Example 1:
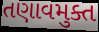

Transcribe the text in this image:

તણાવમુક્ત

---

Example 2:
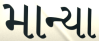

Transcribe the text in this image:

માન્યા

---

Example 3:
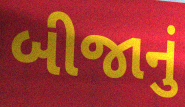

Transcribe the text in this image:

બીજાનું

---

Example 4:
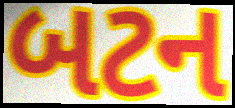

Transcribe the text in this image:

બટન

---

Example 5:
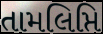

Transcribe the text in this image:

તામલિપ્તિ